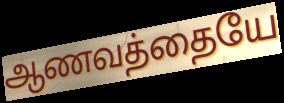
ஆணவத்தையே